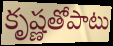
కృష్ణతోపాటు